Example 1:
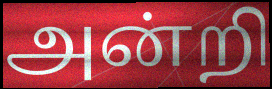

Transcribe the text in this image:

அன்றி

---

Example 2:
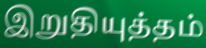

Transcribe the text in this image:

இறுதியுத்தம்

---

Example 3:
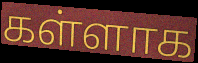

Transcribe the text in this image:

கள்ளாக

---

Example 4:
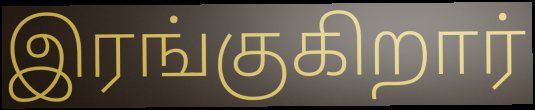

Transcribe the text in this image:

இரங்குகிறார்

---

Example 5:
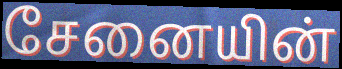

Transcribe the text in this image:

சேனையின்